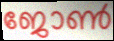
ജോൺ